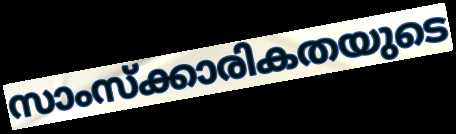
സാംസ്ക്കാരികതയുടെ